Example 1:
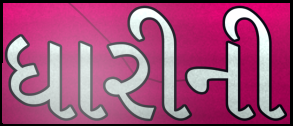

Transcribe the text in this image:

ધારીની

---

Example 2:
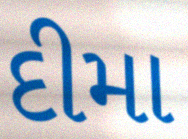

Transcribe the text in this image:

દીમા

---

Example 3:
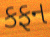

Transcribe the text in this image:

કફન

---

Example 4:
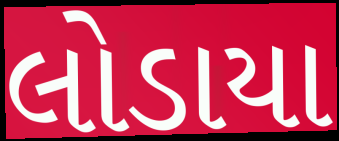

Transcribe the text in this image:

લોડાયા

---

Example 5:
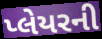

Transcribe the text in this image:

પ્લેયરની